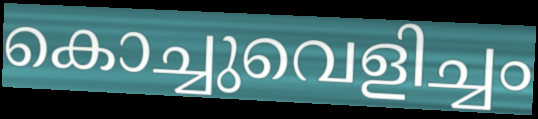
കൊച്ചുവെളിച്ചം